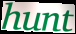
hunt